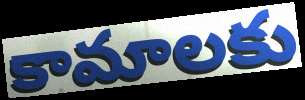
కామాలకు